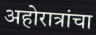
अहोरात्रांचा